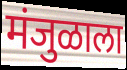
मंजुळाला